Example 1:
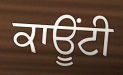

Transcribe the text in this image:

ਕਾਊਂਟੀ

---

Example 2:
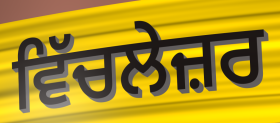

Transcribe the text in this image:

ਵਿੱਚਲੇਜ਼ਰ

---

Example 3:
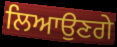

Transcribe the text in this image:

ਲਿਆਉਣਗੇ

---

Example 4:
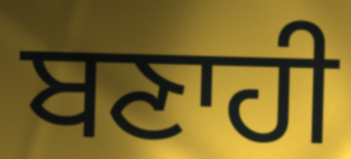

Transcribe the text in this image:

ਬਣਾਹੀ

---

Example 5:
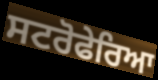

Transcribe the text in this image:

ਸਟਰੋਫੇਰਿਆ